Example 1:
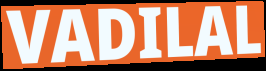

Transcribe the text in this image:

VADILAL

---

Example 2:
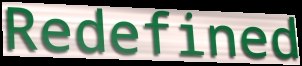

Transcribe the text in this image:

Redefined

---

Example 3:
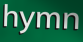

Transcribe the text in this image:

hymn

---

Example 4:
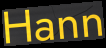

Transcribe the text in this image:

Hann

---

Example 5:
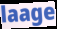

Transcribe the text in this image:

laage